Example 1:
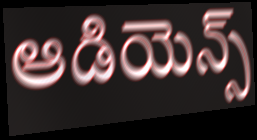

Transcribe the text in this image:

ఆడియెన్స్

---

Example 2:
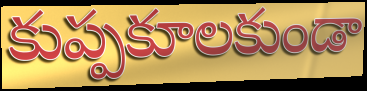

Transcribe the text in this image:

కుప్పకూలకుండా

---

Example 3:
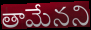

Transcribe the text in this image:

తామేనని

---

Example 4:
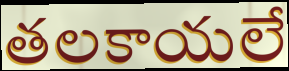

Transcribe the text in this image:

తలకాయలే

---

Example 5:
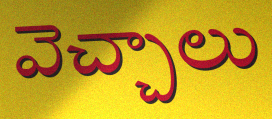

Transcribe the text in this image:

వెచ్చాలు